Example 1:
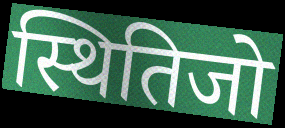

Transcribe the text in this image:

स्थितिजो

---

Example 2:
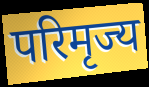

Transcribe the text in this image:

परिमृज्य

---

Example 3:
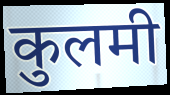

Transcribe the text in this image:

कुलमी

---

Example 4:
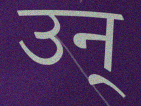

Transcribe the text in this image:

उन्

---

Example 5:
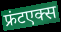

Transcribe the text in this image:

फ्रंटएक्स